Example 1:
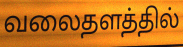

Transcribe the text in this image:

வலைதளத்தில்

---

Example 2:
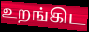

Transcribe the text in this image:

உறங்கிட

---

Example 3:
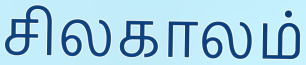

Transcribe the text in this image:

சிலகாலம்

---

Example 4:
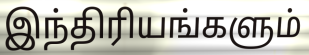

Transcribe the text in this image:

இந்திரியங்களும்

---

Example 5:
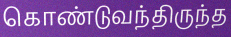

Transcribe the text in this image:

கொண்டுவந்திருந்த